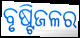
ବୃଷ୍ଟିଜଳର